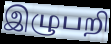
இழுபறி